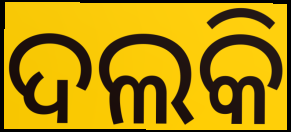
ଦଲକି